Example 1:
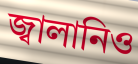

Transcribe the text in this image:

জ্বালানিও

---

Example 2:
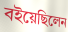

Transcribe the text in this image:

বইয়েছিলেন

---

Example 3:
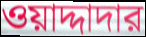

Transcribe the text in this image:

ওয়াদ্দাদার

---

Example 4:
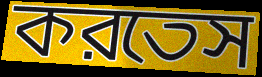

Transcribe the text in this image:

করতেস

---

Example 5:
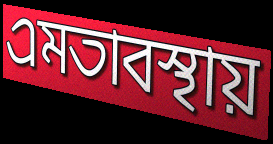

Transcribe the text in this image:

এমতাবস্থায়